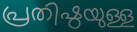
പ്രതിഷ്ഠയുള്ള